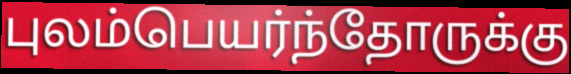
புலம்பெயர்ந்தோருக்கு